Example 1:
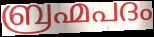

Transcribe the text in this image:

ബ്രഹ്മപദം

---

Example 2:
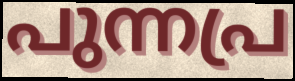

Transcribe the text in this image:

പുന്നപ്ര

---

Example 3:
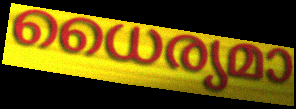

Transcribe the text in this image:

ധൈര്യമാ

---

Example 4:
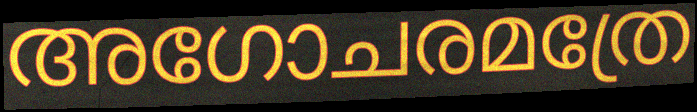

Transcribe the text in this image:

അഗോചരമത്രേ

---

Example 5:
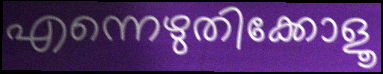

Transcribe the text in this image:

എന്നെഴുതിക്കോളൂ